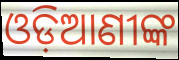
ଓଡ଼ିଆଣୀଙ୍କ